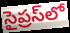
సైప్రస్‌లో